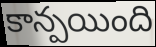
కాన్పయింది